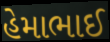
હેમાભાઈ